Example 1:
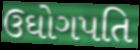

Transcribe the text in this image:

ઉઘોગપતિ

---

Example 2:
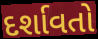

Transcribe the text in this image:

દર્શાવતો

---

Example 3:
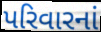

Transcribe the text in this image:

પરિવારનાં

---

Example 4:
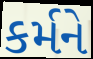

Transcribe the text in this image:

કર્મને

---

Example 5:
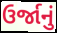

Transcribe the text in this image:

ઉર્જાનું